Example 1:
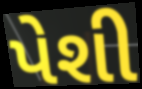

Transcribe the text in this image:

પેશી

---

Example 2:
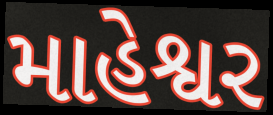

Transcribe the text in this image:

માહેશ્વર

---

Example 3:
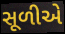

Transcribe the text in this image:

સૂળીએ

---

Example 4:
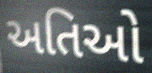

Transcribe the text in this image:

અતિઓ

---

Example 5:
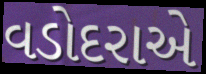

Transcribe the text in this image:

વડોદરાએ